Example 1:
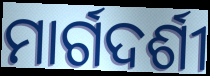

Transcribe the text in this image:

ମାର୍ଗଦର୍ଶୀ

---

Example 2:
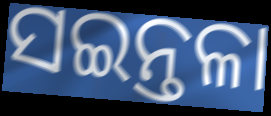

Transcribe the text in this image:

ସଇନ୍ତଳା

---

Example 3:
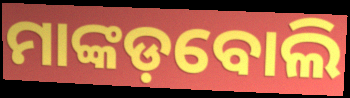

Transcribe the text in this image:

ମାଙ୍କଡ଼ବୋଲି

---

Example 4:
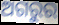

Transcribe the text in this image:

ଅଗରୁର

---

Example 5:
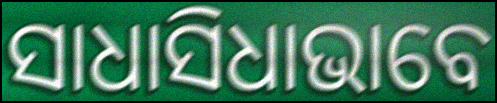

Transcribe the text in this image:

ସାଧାସିଧାଭାବେ